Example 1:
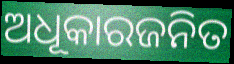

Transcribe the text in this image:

ଅଧୂକାରଜନିତ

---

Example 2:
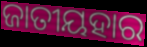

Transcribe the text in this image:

ଜାତୀୟହାର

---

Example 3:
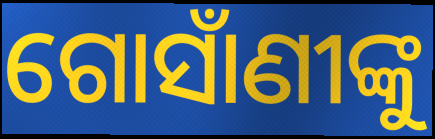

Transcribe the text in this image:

ଗୋସାଁଣୀଙ୍କୁ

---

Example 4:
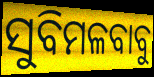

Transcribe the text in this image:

ସୁବିମଳବାବୁ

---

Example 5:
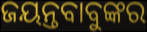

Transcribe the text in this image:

ଜୟନ୍ତବାବୁଙ୍କର